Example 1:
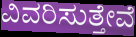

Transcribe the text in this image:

ವಿವರಿಸುತ್ತೇವೆ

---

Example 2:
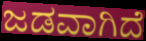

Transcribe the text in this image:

ಜಡವಾಗಿದೆ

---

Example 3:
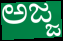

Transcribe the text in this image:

ಅಜ್ಜ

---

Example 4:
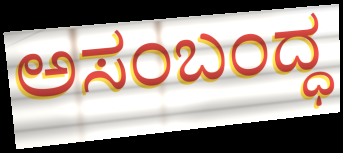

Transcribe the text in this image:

ಅಸಂಬಂದ್ಧ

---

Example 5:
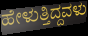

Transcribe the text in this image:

ಹೇಳುತ್ತಿದ್ದವಳು